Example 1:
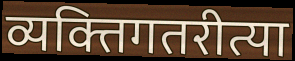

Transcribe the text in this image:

व्यक्तिगतरीत्या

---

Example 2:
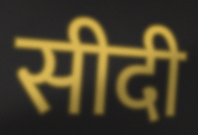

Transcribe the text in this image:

सीदी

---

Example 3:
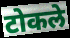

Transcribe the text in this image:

टोकले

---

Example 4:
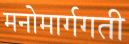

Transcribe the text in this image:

मनोमार्गगती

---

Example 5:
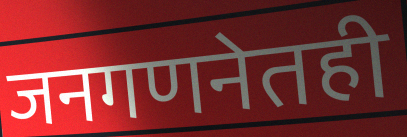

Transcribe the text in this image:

जनगणनेतही